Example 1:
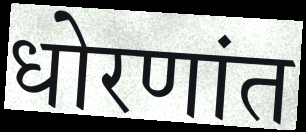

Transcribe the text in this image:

धोरणांत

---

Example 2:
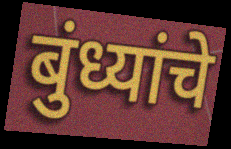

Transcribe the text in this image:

बुंध्यांचे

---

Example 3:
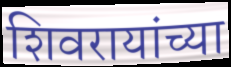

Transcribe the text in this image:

शिवरायांच्या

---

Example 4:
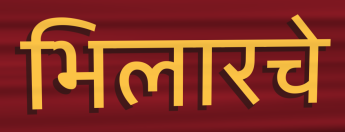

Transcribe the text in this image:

भिलारचे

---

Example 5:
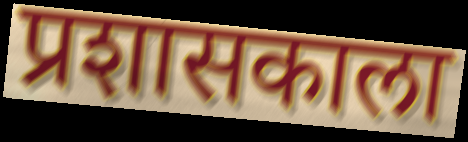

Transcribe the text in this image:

प्रशासकाला